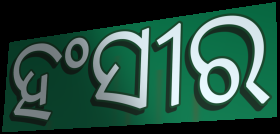
ହଂସୀର